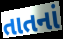
તાતનાં